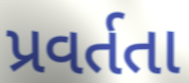
પ્રવર્તતા